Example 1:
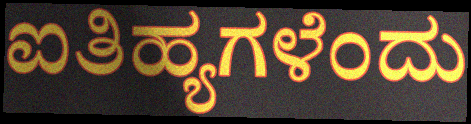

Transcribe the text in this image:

ಐತಿಹ್ಯಗಳೆಂದು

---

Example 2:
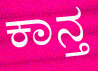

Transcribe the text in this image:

ಕಾನ್ತ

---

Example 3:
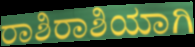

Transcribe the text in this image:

ರಾಶಿರಾಶಿಯಾಗಿ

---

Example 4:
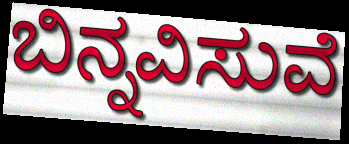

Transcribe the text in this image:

ಬಿನ್ನವಿಸುವೆ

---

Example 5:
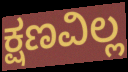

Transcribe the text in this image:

ಕ್ಷಣವಿಲ್ಲ